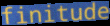
finitude